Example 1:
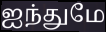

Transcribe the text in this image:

ஐந்துமே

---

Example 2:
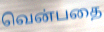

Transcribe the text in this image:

வென்பதை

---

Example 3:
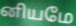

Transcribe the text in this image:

னியமே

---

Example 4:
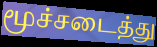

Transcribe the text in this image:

மூச்சடைத்து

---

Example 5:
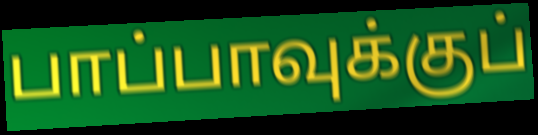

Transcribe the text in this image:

பாப்பாவுக்குப்